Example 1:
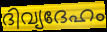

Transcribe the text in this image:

ദിവ്യദേഹം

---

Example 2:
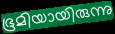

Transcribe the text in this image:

ഭൂമിയായിരുന്നു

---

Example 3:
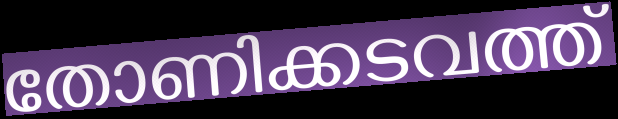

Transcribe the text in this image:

തോണിക്കടവത്ത്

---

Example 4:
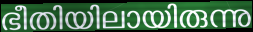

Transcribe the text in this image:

ഭീതിയിലായിരുന്നു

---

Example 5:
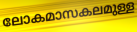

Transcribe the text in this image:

ലോകമാസകലമുള്ള